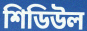
শিডিউল